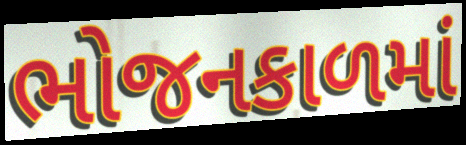
ભોજનકાળમાં